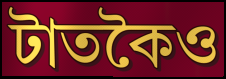
টাতকৈও